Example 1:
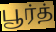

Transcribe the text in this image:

பூர்த்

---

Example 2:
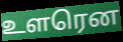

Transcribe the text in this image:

உளரென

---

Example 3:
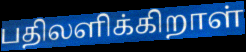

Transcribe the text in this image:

பதிலளிக்கிறாள்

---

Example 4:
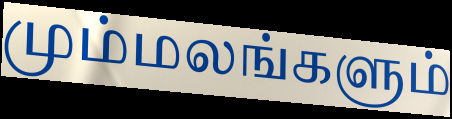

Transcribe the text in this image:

மும்மலங்களும்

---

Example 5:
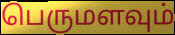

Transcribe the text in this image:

பெருமளவும்